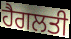
ਹੈਗਲਤੀ